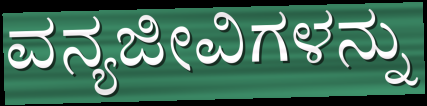
ವನ್ಯಜೀವಿಗಳನ್ನು